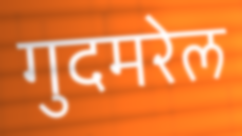
गुदमरेल